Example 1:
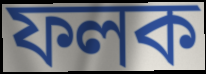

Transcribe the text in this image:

ফলক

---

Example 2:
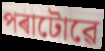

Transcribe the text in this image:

পৰাটোৱে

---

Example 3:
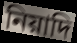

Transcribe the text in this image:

নিয়াদি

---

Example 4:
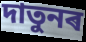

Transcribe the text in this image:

দাতুনৰ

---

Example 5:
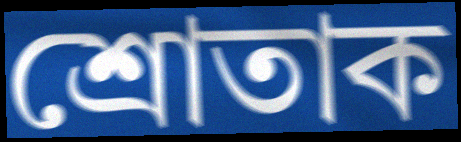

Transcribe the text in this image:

শ্ৰোতাক